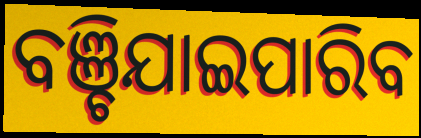
ବଞ୍ଚିଯାଇପାରିବ